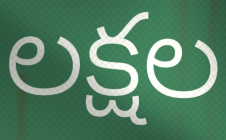
లక్షల